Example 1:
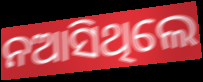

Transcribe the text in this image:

ନଆସିଥିଲେ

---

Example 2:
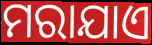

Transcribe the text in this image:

ମରାଯାଏ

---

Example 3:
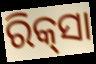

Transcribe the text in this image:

ରିକ୍‌ସା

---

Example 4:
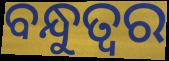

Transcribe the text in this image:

ବନ୍ଧୁତ୍ବର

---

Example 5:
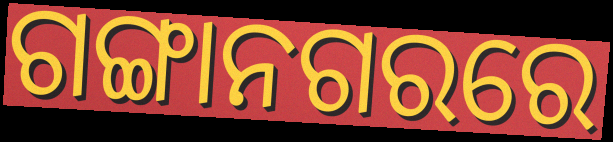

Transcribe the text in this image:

ଗଙ୍ଗାନଗରରେ